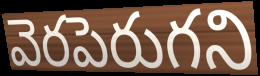
వెరపెరుగని